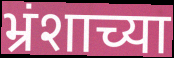
भ्रंशाच्या